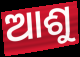
ଆଶୁ